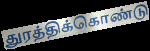
துரத்திக்கொண்டு